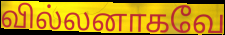
வில்லனாகவே